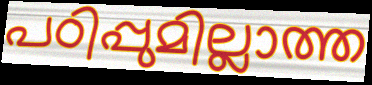
പഠിപ്പുമില്ലാത്ത